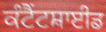
ਕੰਟੈਂਟਸ਼ਾਈਡ